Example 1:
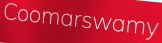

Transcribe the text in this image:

Coomarswamy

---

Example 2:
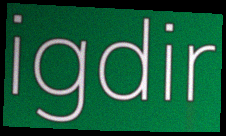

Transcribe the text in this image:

igdir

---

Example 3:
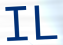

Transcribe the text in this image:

IL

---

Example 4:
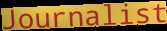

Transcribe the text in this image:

Journalist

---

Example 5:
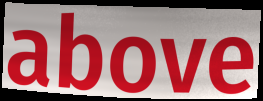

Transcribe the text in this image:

above